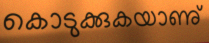
കൊടുക്കുകയാണു്